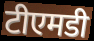
टीएमडी